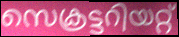
സെക്രട്ടറിയറ്റ്